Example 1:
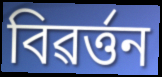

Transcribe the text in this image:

বিৱৰ্ত্তন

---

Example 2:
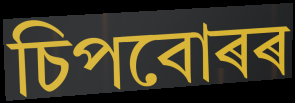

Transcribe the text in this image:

চিপবোৰৰ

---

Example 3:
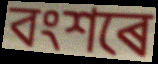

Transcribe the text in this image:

বংশৰে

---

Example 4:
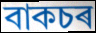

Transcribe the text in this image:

বাকচৰ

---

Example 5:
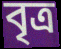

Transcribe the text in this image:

বৃত্ৰ